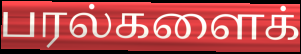
பரல்களைக்